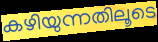
കഴിയുന്നതിലൂടെ